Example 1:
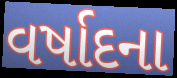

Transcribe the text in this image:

વર્ષાદના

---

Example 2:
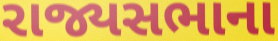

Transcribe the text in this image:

રાજ્યસભાના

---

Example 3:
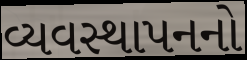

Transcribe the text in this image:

વ્યવસ્થાપનનો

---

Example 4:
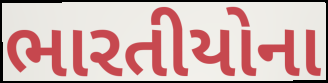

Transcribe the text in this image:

ભારતીયોના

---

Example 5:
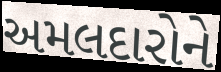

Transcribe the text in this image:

અમલદારોને